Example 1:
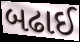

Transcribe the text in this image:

બઢાઈ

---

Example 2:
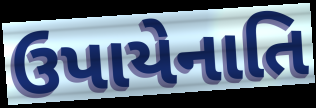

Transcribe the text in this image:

ઉપાયેનાતિ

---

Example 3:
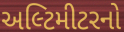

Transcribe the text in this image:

અલ્ટિમીટરનો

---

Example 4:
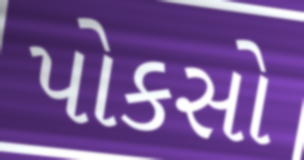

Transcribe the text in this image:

પોકસો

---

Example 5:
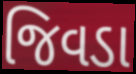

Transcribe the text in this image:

જિવડા